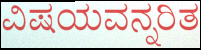
ವಿಷಯವನ್ನರಿತ